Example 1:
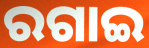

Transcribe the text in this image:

ରଗାଇ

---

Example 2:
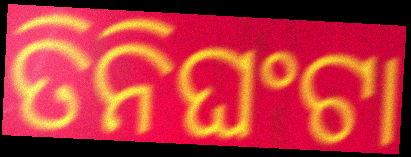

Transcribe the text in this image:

ତିନିଘଂଟା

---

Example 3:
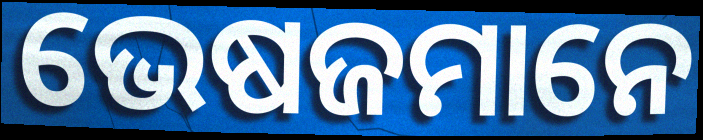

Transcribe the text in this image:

ଭେଷଜମାନେ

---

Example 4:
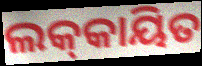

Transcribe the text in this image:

ଲକ୍‌କାୟିତ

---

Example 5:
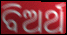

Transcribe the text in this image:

ବିଅର୍ଥ